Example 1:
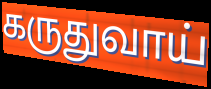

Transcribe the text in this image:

கருதுவாய்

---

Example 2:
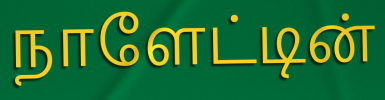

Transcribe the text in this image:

நாளேட்டின்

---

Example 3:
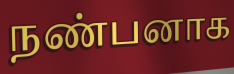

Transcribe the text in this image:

நண்பனாக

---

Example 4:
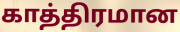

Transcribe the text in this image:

காத்திரமான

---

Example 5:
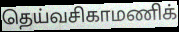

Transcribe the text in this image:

தெய்வசிகாமணிக்